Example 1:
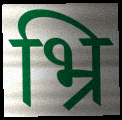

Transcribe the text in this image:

भ्रि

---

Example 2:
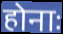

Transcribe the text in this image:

होनाः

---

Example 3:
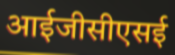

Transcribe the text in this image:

आईजीसीएसई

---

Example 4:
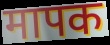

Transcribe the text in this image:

मापक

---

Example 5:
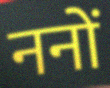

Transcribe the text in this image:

ननों